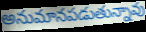
అనుమానపడుతున్నావు